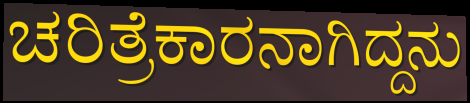
ಚರಿತ್ರೆಕಾರನಾಗಿದ್ದನು